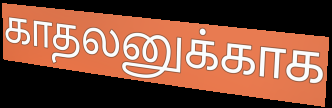
காதலனுக்காக